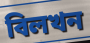
বিলখন